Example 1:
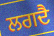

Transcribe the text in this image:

ਲਗਦੈ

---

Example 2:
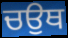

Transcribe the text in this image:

ਚਉਥ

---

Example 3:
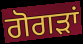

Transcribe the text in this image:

ਗੋਗੜਾਂ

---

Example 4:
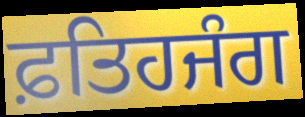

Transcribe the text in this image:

ਫ਼ਤਿਹਜੰਗ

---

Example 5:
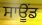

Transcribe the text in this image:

ਸਾਊਂਡ